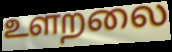
உளறலை